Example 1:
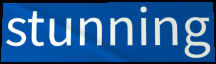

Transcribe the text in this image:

stunning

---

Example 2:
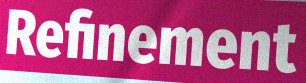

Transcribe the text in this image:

Refinement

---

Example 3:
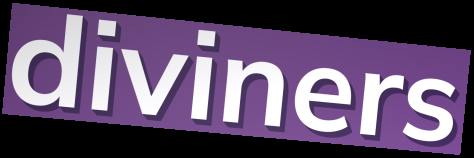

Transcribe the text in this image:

diviners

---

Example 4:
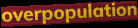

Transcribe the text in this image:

overpopulation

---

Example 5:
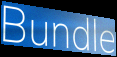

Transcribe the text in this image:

Bundle